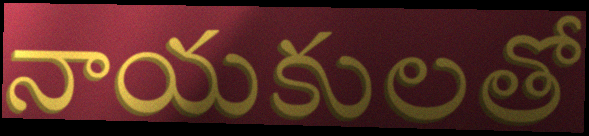
నాయకులతో